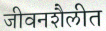
जीवनशैलीत